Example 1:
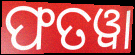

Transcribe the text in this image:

ଫତୱା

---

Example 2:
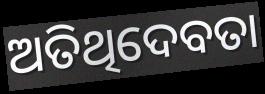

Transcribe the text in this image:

ଅତିଥିଦେବତା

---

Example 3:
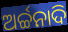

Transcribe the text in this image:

ଅର୍ଚ୍ଚନାଦି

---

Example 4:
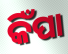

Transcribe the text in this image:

କିଁପା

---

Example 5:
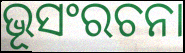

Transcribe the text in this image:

ଭୂସଂରଚନା